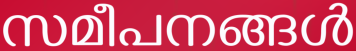
സമീപനങ്ങൾ